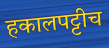
हकालपट्टीच